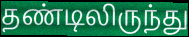
தண்டிலிருந்து